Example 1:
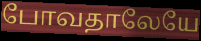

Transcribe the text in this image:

போவதாலேயே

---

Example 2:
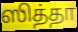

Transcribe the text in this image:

ஸித்தா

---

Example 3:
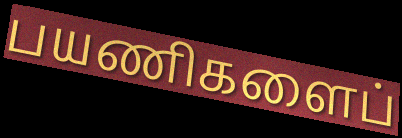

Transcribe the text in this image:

பயணிகளைப்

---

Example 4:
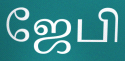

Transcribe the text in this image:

ஜேபி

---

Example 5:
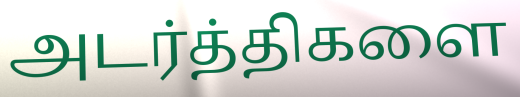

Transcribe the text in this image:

அடர்த்திகளை